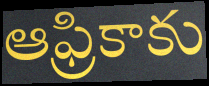
ఆఫ్రికాకు